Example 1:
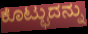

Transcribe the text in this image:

ಕೊಟ್ಟುದನ್ನು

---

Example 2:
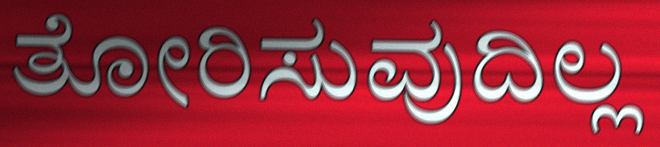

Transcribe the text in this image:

ತೋರಿಸುವುದಿಲ್ಲ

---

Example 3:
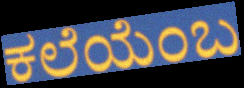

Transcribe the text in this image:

ಕಲೆಯೆಂಬ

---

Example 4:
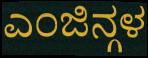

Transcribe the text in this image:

ಎಂಜಿನ್ಗಳ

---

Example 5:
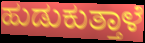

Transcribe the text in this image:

ಹುಡುಕುತ್ತಾಳೆ